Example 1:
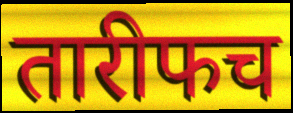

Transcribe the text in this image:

तारीफच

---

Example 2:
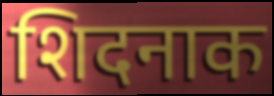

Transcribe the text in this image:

शिदनाक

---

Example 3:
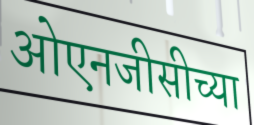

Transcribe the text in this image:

ओएनजीसीच्या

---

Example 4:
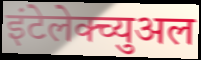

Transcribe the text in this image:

इंटेलेक्च्युअल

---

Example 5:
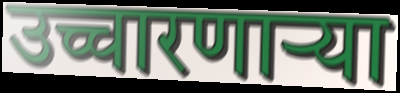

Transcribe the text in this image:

उच्चारणाऱ्या